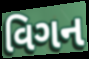
વિગન